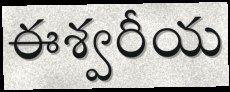
ఈశ్వరీయ